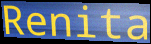
Renita